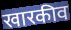
खारकीव